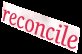
reconcile